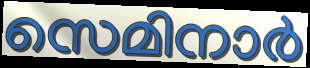
സെമിനാർ